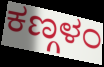
ಕಣ್ಗಳಂ